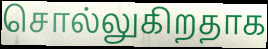
சொல்லுகிறதாக